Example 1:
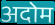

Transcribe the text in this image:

अदोम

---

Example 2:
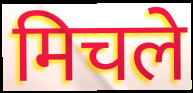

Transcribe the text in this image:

मिचले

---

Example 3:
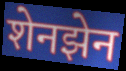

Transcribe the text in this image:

शेनझेन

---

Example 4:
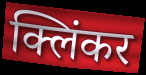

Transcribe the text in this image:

क्लिंकर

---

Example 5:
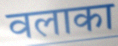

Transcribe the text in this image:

वलाका